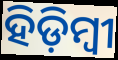
ହିଡ଼ିମ୍ବୀ